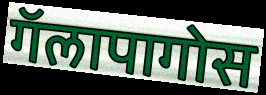
गॅलापागोस